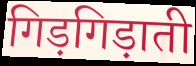
गिड़गिड़ाती